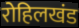
रोहिलखंड